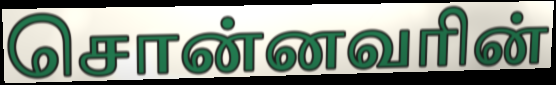
சொன்னவரின்